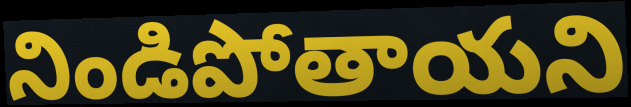
నిండిపోతాయని